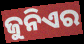
ଜୁନିଏର